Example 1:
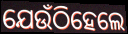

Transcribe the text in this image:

ଯେଉଁଠିହେଲେ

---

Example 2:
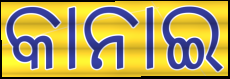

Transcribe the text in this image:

କାନାଇ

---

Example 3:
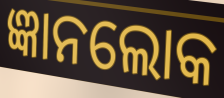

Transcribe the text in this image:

ଜ୍ଞାନଲୋକ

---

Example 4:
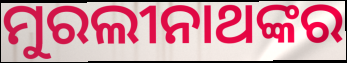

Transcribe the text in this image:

ମୁରଲୀନାଥଙ୍କର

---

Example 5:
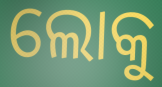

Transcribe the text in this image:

ଲୋକୁ